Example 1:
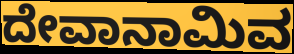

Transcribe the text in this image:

ದೇವಾನಾಮಿವ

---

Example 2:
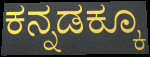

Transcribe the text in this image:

ಕನ್ನಡಕ್ಕೂ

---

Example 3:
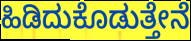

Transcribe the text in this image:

ಹಿಡಿದುಕೊಡುತ್ತೇನೆ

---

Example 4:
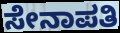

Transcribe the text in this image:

ಸೇನಾಪತಿ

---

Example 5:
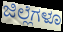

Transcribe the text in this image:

ಜಿಲ್ಲೆಗಳೂ